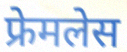
फ्रेमलेस